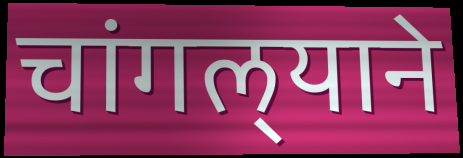
चांगल्याने